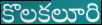
కొలకలూరి